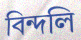
বিন্দলি